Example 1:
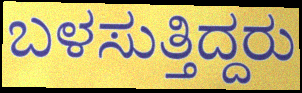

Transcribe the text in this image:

ಬಳಸುತ್ತಿದ್ದರು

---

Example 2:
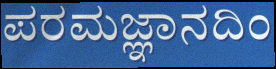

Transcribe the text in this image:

ಪರಮಜ್ಞಾನದಿಂ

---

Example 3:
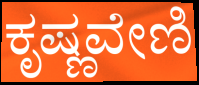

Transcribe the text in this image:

ಕೃಷ್ಣವೇಣಿ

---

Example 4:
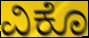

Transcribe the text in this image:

ವಿಕೊ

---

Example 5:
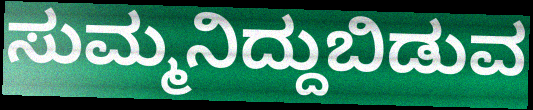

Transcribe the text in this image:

ಸುಮ್ಮನಿದ್ದುಬಿಡುವ